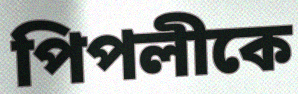
পিপলীকে